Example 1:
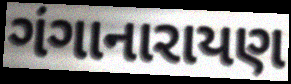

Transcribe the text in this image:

ગંગાનારાયણ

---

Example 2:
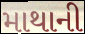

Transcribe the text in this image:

માથાની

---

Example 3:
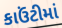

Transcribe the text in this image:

કાઉંટીમાં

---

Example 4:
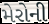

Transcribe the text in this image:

મેરોની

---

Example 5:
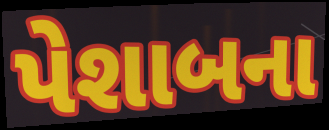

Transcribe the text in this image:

પેશાબના